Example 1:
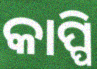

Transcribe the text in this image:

କାପ୍ପି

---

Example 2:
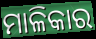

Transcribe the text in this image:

ମାଳିକାର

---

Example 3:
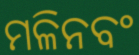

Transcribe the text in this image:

ମଳିନବଂ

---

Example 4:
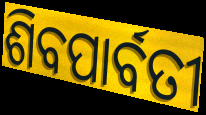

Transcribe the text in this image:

ଶିବପାର୍ବତୀ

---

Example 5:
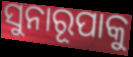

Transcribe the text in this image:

ସୁନାରୂପାକୁ